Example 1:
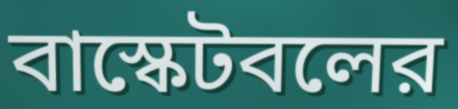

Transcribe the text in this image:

বাস্কেটবলের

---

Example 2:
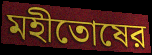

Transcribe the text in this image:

মহীতোষের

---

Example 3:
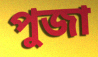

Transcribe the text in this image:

পুজা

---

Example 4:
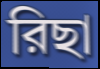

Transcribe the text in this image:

রিছা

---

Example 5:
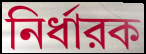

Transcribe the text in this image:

নির্ধারক